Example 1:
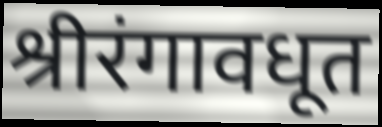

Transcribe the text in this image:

श्रीरंगावधूत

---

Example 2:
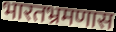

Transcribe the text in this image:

भारतभ्रमणास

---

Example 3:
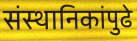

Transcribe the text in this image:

संस्थानिकांपुढे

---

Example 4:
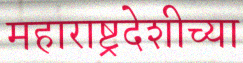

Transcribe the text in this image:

महाराष्ट्रदेशीच्या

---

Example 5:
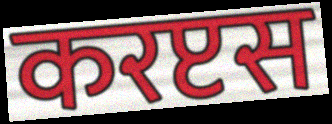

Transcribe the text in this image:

करप्टस